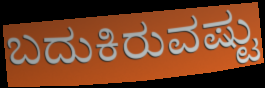
ಬದುಕಿರುವಷ್ಟು